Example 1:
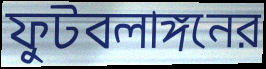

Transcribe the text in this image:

ফুটবলাঙ্গনের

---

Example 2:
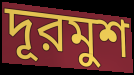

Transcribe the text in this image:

দূরমুশ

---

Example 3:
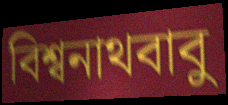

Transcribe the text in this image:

বিশ্বনাথবাবু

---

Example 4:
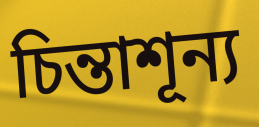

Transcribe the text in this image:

চিন্তাশূন্য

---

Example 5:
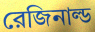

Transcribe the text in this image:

রেজিনাল্ড